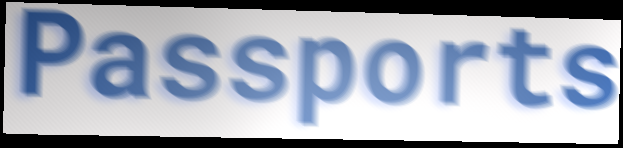
Passports